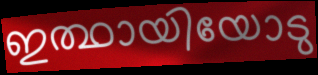
ഇത്ഥായിയോടു